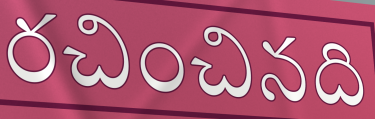
రచించినది